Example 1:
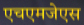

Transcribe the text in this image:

एचएमजेएस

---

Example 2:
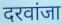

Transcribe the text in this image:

दरवांजा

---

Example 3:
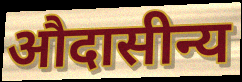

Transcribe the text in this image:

औदासीन्य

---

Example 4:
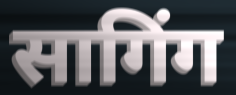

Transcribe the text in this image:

सागिंग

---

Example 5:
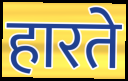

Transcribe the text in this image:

हारते